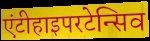
एंटीहाइपरटेन्सिव